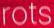
rots